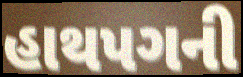
હાથપગની